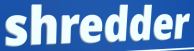
shredder